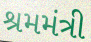
શ્રમમંત્રી